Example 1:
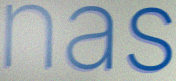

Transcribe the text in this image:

nas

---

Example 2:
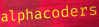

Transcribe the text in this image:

alphacoders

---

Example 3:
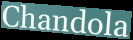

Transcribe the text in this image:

Chandola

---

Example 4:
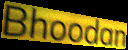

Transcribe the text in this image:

Bhoodan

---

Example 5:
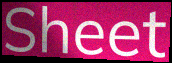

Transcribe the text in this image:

Sheet